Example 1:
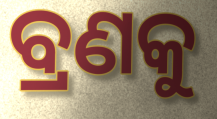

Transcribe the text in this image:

ବ୍ରଣକୁ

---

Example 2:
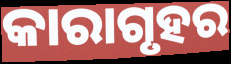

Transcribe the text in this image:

କାରାଗୃହର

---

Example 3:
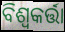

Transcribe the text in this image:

ବିଶ୍ୱକର୍ତ୍ତା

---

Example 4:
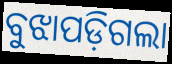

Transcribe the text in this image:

ବୁଝାପଡ଼ିଗଲା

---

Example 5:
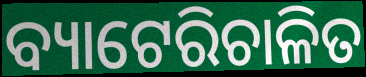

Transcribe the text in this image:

ବ୍ୟାଟେରିଚାଳିତ